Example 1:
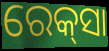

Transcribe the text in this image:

ରେକ୍‍ସା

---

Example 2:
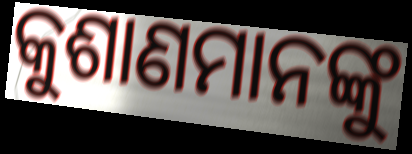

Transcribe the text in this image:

କୁଶାଣମାନଙ୍କୁ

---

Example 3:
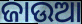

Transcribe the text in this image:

ଜାଉଆ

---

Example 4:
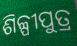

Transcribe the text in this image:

ଶିଳ୍ପୀପୁତ୍ର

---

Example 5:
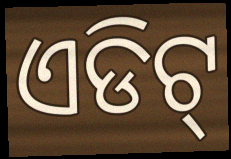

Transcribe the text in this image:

ଏଡିଟ୍